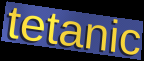
tetanic